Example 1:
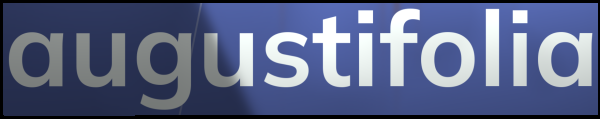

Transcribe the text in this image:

augustifolia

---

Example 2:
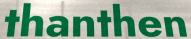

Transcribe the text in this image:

thanthen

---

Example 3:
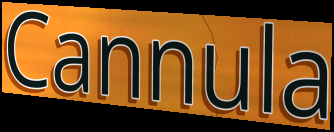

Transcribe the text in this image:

Cannula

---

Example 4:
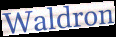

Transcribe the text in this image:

Waldron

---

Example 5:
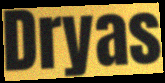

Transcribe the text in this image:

Dryas